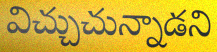
విచ్చుచున్నాడని